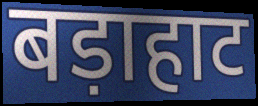
बड़ाहाट